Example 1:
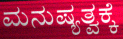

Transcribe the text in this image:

ಮನುಷ್ಯತ್ವಕ್ಕೆ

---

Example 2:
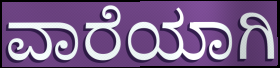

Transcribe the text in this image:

ವಾರೆಯಾಗಿ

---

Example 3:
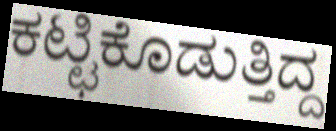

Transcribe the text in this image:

ಕಟ್ಟಿಕೊಡುತ್ತಿದ್ದ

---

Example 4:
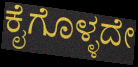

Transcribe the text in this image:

ಕೈಗೊಳ್ಳದೇ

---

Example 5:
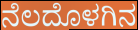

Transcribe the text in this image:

ನೆಲದೊಳಗಿನ